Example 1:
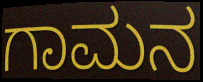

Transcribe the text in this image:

ಗಾಮನ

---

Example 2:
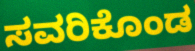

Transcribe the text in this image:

ಸವರಿಕೊಂಡ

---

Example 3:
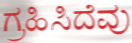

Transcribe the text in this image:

ಗ್ರಹಿಸಿದೆವು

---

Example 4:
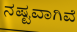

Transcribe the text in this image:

ನಷ್ಟವಾಗಿವೆ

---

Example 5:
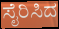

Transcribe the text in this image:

ಸೈರಿಸಿದ